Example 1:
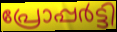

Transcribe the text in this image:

പ്രോപ്പർട്ടി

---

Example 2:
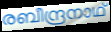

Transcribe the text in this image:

രബീന്ദ്രനാഥ്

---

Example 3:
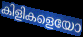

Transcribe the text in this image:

കിളികളെയോ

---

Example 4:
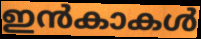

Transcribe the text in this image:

ഇൻകാകൾ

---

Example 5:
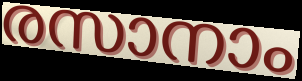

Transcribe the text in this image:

രസാനാം